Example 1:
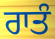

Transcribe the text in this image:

ਰਾਤੰ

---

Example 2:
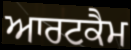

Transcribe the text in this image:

ਆਰਟਕੈਮ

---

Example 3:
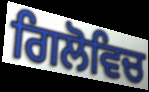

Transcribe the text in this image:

ਗਿਲੋਵਿਚ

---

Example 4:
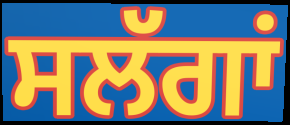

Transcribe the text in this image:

ਸਲੱਗਾਂ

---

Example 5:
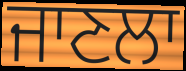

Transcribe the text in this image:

ਜਾਣਲਾ